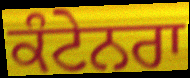
ਕੰਟੇਨਰਾ